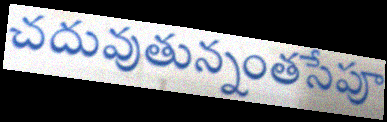
చదువుతున్నంతసేపూ